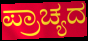
ಪ್ರಾಚ್ಯದ